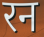
रन